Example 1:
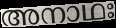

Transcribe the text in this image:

അനാഥഃ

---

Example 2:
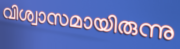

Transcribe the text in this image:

വിശ്വാസമായിരുന്നു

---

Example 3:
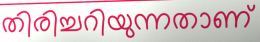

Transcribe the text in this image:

തിരിച്ചറിയുന്നതാണ്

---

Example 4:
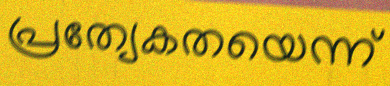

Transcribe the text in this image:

പ്രത്യേകതയെന്ന്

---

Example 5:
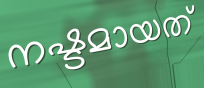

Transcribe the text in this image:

നഷ്ടമായത്